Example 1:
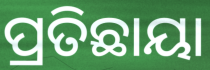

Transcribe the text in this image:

ପ୍ରତିଛାୟା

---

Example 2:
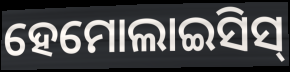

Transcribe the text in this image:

ହେମୋଲାଇସିସ୍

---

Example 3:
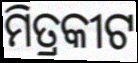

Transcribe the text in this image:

ମିତ୍ରକୀଟ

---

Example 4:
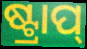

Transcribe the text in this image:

ଷ୍ଟ୍ରାପ୍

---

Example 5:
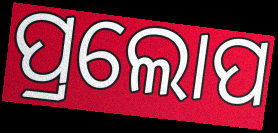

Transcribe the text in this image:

ପ୍ରଲୋପ